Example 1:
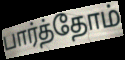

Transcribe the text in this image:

பார்த்தோம்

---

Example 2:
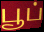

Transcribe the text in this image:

பூப்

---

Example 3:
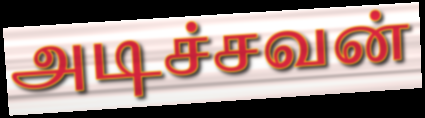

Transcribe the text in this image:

அடிச்சவன்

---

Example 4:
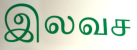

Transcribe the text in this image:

இலவச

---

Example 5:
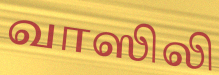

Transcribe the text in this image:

வாஸிலி